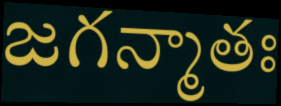
జగన్మాతః